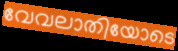
വേവലാതിയോടെ